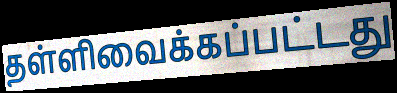
தள்ளிவைக்கப்பட்டது